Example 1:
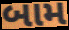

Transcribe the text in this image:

બામ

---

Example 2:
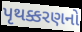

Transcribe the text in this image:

પૃથક્કરણનો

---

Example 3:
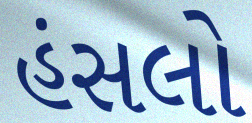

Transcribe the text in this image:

હંસલો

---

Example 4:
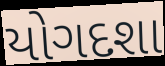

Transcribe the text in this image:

યોગદશા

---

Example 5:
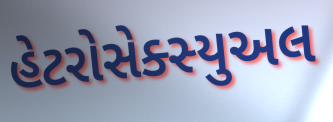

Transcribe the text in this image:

હેટરોસેક્સ્યુઅલ